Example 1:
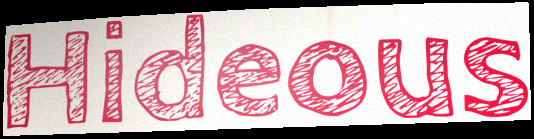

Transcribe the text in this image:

Hideous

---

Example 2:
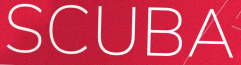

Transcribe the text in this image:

SCUBA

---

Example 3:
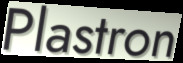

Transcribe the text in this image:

Plastron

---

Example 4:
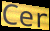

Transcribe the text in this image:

Cer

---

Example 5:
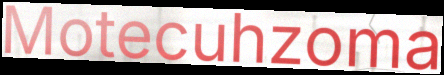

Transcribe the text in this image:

Motecuhzoma